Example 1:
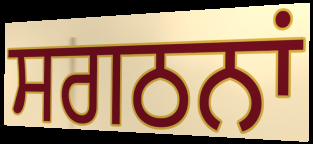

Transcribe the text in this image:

ਸਗਠਨਾਂ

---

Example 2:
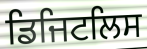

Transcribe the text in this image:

ਡਿਜਿਟਲਿਸ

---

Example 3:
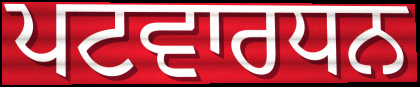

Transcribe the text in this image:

ਪਟਵਾਰਧਨ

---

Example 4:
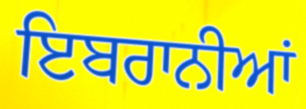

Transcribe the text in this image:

ਇਬਰਾਨੀਆਂ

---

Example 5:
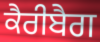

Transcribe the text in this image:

ਕੈਰੀਬੈਗ